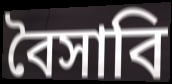
বৈসাবি